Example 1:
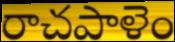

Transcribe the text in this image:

రాచపాళెం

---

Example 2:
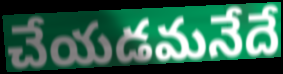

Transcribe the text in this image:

చేయడమనేదే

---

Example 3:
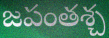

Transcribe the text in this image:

జపంతశ్చ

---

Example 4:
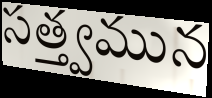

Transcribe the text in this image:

సత్త్వమున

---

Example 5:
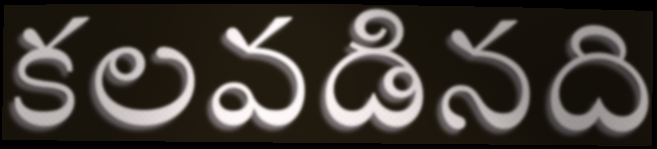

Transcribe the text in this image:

కలవడినది